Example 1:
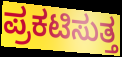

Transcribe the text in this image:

ಪ್ರಕಟಿಸುತ್ತ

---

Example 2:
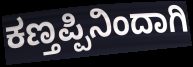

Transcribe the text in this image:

ಕಣ್ತಪ್ಪಿನಿಂದಾಗಿ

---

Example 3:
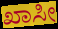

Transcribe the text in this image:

ಖಾಸೀ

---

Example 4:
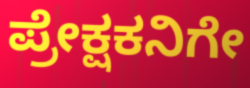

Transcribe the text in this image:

ಪ್ರೇಕ್ಷಕನಿಗೇ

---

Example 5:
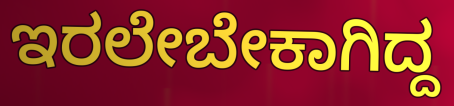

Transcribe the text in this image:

ಇರಲೇಬೇಕಾಗಿದ್ದ